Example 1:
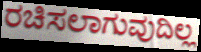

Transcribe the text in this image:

ರಚಿಸಲಾಗುವುದಿಲ್ಲ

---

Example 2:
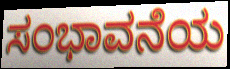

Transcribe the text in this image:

ಸಂಭಾವನೆಯ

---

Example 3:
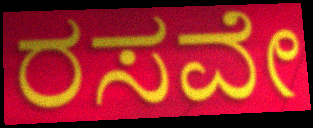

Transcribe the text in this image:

ರಸವೇ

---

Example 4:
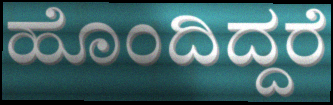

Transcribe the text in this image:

ಹೊಂದಿದ್ದರೆ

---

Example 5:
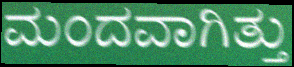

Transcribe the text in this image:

ಮಂದವಾಗಿತ್ತು